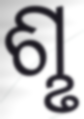
ଶୢ